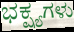
ಭಕ್ಷ್ಯಗಳು